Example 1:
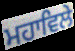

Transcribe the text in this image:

ਮਹਾਵਿਲੇ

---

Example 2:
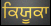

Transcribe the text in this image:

ਕਿਯੂਕਾ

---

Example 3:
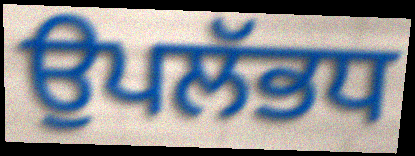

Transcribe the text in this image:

ਉਪਲੱਭਧ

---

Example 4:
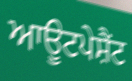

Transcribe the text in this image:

ਆਊਟਪੇਸ਼ੈਂਟ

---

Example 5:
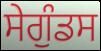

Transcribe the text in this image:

ਸੇਗੁੰਡਸ